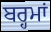
ਬਰ੍ਹਮਾਂ